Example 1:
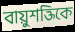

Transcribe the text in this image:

বায়ুশক্তিকে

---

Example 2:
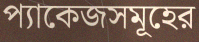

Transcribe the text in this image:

প্যাকেজসমূহের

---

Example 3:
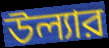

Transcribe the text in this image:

উল্যার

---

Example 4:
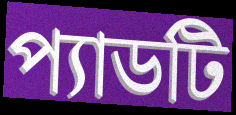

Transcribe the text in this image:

প্যাডটি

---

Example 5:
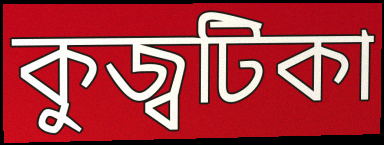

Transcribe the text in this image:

কুজ্বটিকা